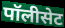
पॉलीसेट